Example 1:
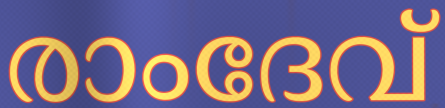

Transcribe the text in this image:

രാംദേവ്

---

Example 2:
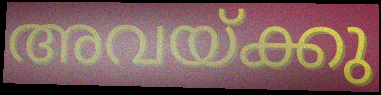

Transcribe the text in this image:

അവയ്ക്കു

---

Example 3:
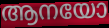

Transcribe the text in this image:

ആനയോ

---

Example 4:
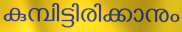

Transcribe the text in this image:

കുമ്പിട്ടിരിക്കാനും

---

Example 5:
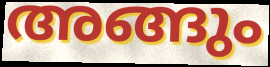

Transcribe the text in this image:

അങ്ങും